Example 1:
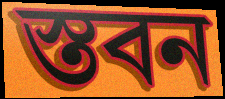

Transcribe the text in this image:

স্তবন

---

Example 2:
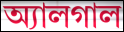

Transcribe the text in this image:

অ্যালগাল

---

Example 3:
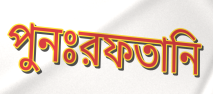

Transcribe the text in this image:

পুনঃরফতানি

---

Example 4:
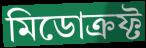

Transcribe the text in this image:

মিডোক্রফ্ট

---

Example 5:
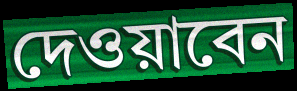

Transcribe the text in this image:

দেওয়াবেন